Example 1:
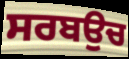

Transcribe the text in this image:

ਸਰਬਉਚ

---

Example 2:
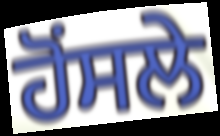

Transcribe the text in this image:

ਹੋਂਸਲੇ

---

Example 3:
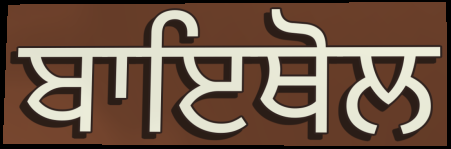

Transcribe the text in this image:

ਬਾਇਥੋਲ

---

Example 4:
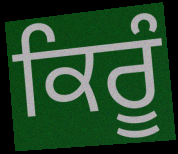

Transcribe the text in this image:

ਕਿਰੂੰ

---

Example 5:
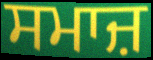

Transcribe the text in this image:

ਸਮਾਜ਼